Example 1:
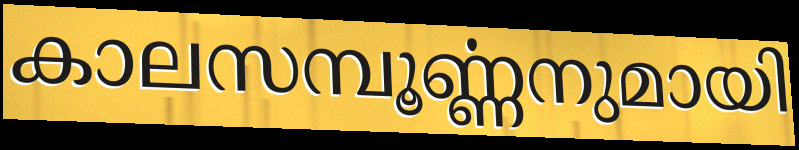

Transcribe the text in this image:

കാലസമ്പൂൎണ്ണനുമായി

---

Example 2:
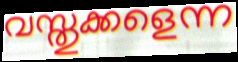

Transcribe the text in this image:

വസ്തുക്കളെന്ന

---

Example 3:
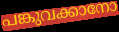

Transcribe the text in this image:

പങ്കുവക്കാനോ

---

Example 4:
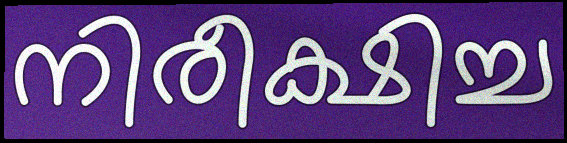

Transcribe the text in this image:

നിരീക്ഷിച്ച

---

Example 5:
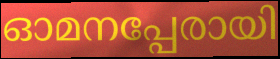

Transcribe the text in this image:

ഓമനപ്പേരായി